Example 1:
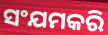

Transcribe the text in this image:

ସଂଯମକରି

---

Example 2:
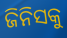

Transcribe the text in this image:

ଜିନିସକୁ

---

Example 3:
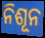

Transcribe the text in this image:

ନିଶୂନ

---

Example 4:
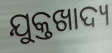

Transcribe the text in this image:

ଯୁକ୍ତଖାଦ୍ୟ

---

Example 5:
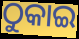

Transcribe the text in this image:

ଠୁକାଇ